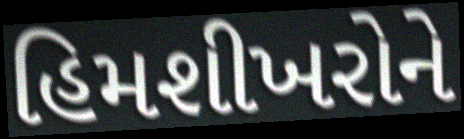
હિમશીખરોને